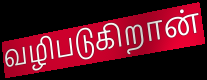
வழிபடுகிறான்